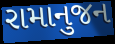
રામાનુજન